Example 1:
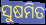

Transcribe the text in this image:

ସୁଷମିତ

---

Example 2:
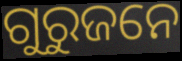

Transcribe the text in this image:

ଗୁରୁଜନେ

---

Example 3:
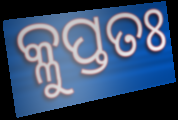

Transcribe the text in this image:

କ୍ଳୁପ୍ତତଃ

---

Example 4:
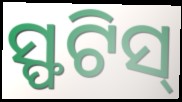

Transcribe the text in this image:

ସ୍ଫଟିସ୍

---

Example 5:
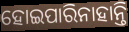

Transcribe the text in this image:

ହୋଇପାରିନାହାନ୍ତି